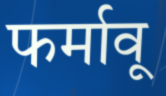
फर्मावू